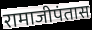
रामाजीपंतास